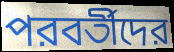
পরবর্তীদের